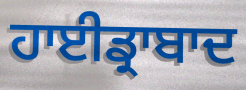
ਹਾਈਡ੍ਰਾਬਾਦ